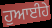
ਹੁਆਈਹੇ